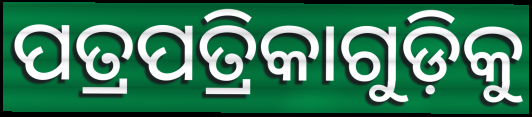
ପତ୍ରପତ୍ରିକାଗୁଡ଼ିକୁ